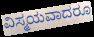
ವಿಸ್ಮಯವಾದರೂ